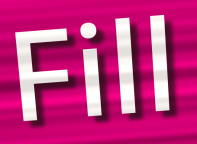
Fill